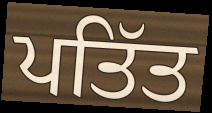
ਪਤਿੱਤ